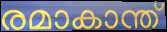
രമാകാന്ത്